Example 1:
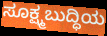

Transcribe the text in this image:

ಸೂಕ್ಷ್ಮಬುದ್ಧಿಯ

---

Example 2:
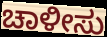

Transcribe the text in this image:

ಚಾಳೀಸು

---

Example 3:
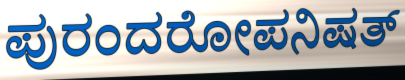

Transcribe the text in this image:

ಪುರಂದರೋಪನಿಷತ್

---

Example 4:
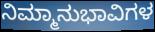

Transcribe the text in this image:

ನಿಮ್ಮಾನುಭಾವಿಗಳ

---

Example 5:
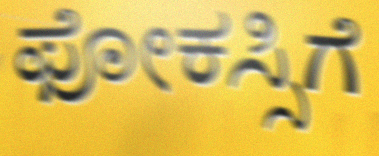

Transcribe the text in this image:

ಫೋಕಸ್ಸಿಗೆ